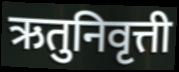
ऋतुनिवृत्ती